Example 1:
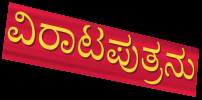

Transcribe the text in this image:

ವಿರಾಟಪುತ್ರನು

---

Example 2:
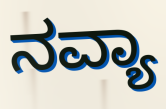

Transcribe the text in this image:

ನವ್ಯಾ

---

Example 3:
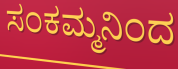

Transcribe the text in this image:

ಸಂಕಮ್ಮನಿಂದ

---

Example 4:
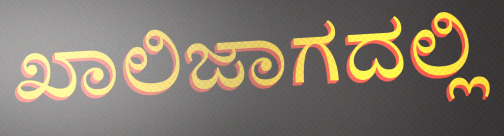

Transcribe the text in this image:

ಖಾಲಿಜಾಗದಲ್ಲಿ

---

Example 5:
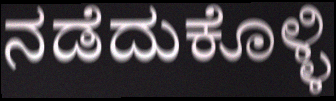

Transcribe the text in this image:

ನಡೆದುಕೊಳ್ಳಿ